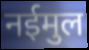
नईमुल